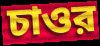
চাওর